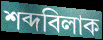
শব্দবিলাক